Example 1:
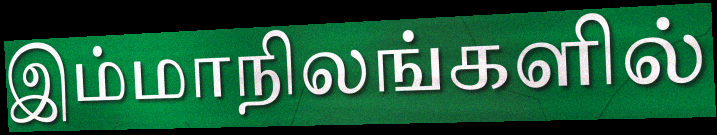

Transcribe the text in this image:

இம்மாநிலங்களில்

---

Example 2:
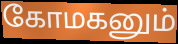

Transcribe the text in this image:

கோமகனும்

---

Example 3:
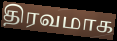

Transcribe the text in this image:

திரவமாக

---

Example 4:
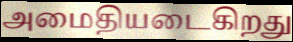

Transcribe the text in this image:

அமைதியடைகிறது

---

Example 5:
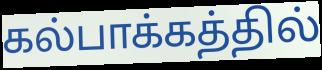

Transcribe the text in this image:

கல்பாக்கத்தில்